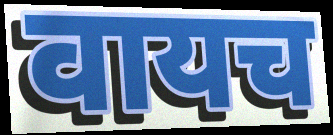
वायच